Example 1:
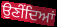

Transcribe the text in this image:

ਉਣੀਂਦਿਆਂ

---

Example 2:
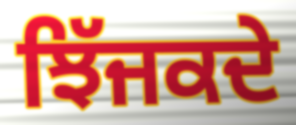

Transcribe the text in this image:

ਝਿੱਜਕਦੇ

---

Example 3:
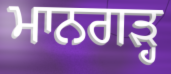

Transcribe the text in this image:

ਮਾਨਗੜ੍ਹ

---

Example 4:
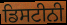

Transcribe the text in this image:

ਡਿਸਟੀਨੀ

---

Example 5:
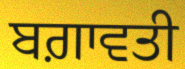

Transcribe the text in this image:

ਬਗ਼ਾਵਤੀ